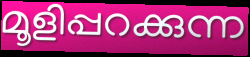
മൂളിപ്പറക്കുന്ന